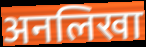
अनलिखा